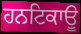
ਹਨਟਿਕਾਊ